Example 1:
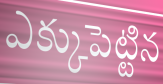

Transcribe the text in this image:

ఎక్కుపెట్టిన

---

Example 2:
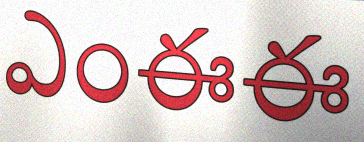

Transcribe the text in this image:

ఎంఈఈ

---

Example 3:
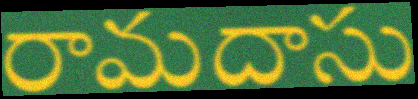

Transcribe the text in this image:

రామదాసు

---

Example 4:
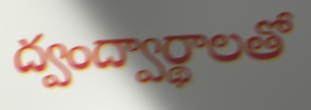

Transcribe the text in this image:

ద్వంద్వార్థాలతో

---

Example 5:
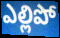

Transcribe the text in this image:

ఎల్లిపో